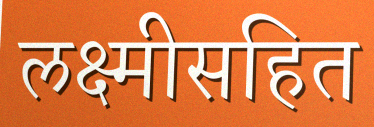
लक्ष्मीसहित